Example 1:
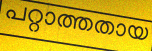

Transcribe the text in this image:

പറ്റാത്തതായ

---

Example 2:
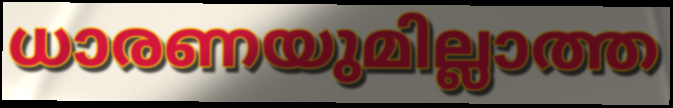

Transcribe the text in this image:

ധാരണയുമില്ലാത്ത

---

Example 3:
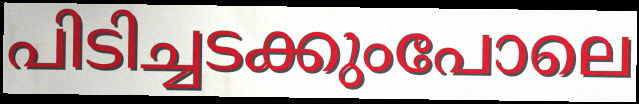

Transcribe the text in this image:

പിടിച്ചടക്കുംപോലെ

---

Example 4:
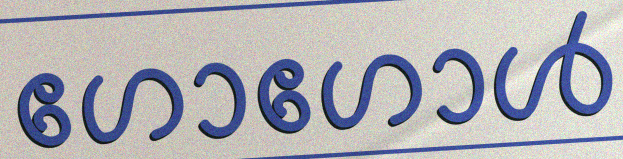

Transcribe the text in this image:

ഗോഗോൾ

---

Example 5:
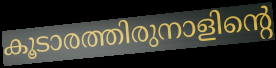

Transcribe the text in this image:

കൂടാരത്തിരുനാളിന്റെ